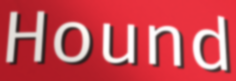
Hound